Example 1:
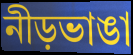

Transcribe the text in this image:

নীড়ভাঙা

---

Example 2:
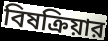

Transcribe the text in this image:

বিষক্রিয়ার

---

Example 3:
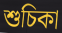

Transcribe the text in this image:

শুচিকা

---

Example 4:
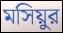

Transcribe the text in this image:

মসিয়ুর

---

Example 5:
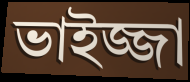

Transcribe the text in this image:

ভাইজ্জা